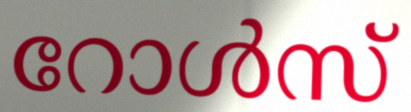
റോൾസ്